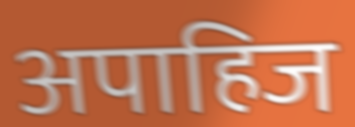
अपाहिज